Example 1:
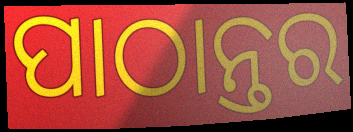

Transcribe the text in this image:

ପାଠାନ୍ତର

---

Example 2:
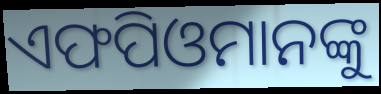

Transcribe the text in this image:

ଏଫପିଓମାନଙ୍କୁ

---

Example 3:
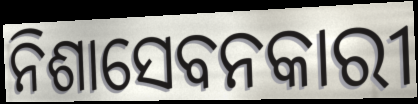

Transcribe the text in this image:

ନିଶାସେବନକାରୀ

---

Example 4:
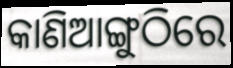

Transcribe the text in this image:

କାଣିଆଙ୍ଗୁଠିରେ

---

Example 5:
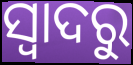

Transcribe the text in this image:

ସ୍ୱାଦରୁ